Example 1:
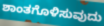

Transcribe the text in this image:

ಶಾಂತಗೊಳಿಸುವುದು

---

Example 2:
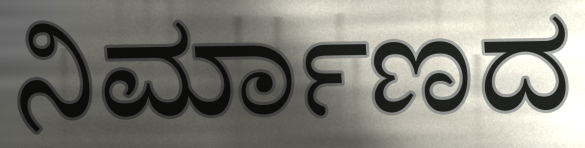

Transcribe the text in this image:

ನಿರ್ಮಾಣದ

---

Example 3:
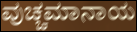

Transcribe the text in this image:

ವುಚ್ಚಮಾನಾಯ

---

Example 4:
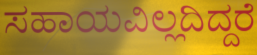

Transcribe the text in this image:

ಸಹಾಯವಿಲ್ಲದಿದ್ದರೆ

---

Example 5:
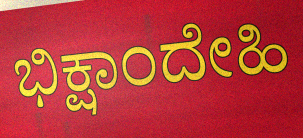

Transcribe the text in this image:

ಭಿಕ್ಷಾಂದೇಹಿ